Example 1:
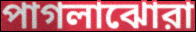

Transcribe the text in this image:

পাগলাঝোরা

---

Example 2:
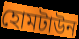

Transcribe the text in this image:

হোমটাউন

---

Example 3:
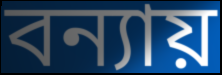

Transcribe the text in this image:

বন্যায়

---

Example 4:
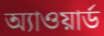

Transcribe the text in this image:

অ্যাওয়ার্ড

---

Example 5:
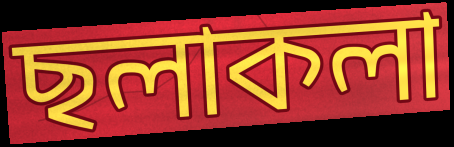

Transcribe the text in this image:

ছলাকলা